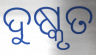
ଦୁଷ୍କୃତ